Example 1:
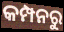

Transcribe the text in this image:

କମ୍ପନରୁ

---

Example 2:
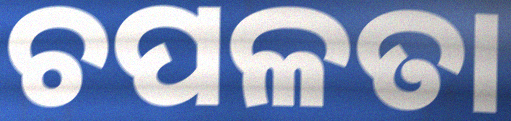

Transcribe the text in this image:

ଚପଳତା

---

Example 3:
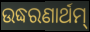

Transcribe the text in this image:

ଉଦ୍ଧରଣାର୍ଥମ୍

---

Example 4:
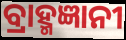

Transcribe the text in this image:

ବ୍ରାହ୍ମଜ୍ଞାନୀ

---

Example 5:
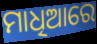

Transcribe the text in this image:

ମାଧିଆରେ